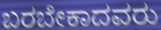
ಬರಬೇಕಾದವರು